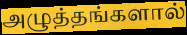
அழுத்தங்களால்